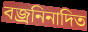
বজ্রনিনাদিত